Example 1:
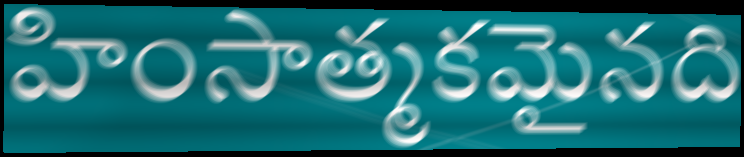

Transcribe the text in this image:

హింసాత్మకమైనది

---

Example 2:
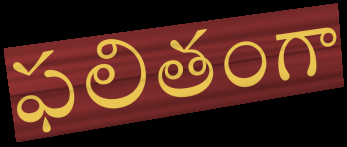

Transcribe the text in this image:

ఫలితంగా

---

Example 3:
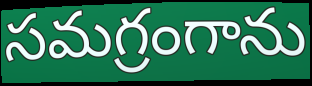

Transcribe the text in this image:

సమగ్రంగాను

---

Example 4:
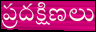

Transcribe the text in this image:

ప్రదక్షిణలు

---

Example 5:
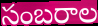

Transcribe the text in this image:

సంబరాల